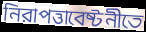
নিরাপত্তাবেষ্টনীতে